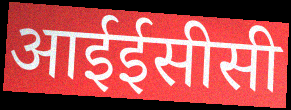
आईईसीसी